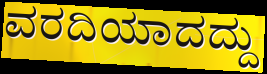
ವರದಿಯಾದದ್ದು